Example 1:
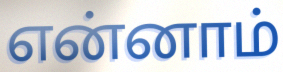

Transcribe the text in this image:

என்னாம்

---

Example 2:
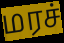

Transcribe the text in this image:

மரச்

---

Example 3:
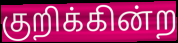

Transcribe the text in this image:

குறிக்கின்ற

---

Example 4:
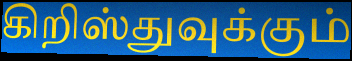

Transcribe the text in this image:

கிறிஸ்துவுக்கும்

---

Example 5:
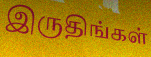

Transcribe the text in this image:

இருதிங்கள்